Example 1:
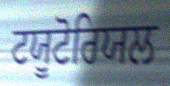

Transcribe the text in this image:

ਟਯੂਟੋਰਿਯਲ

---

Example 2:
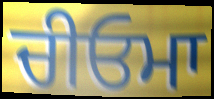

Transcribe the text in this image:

ਚੀਓਮਾ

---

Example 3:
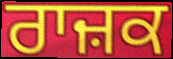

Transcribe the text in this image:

ਰਾਜ਼ਕ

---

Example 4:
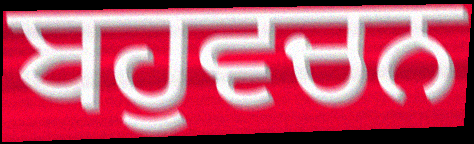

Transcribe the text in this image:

ਬਹੁਵਚਨ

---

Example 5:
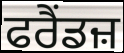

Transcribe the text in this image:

ਫਰੈਂਡਜ਼